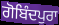
ਗੋਬਿੰਦਪੁਰਾ